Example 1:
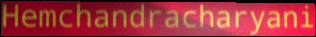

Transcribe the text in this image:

Hemchandracharyani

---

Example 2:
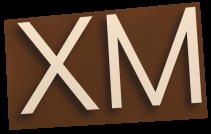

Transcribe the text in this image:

XM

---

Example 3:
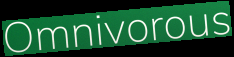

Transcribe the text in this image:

Omnivorous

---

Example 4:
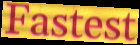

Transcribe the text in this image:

Fastest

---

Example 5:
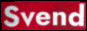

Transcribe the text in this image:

Svend